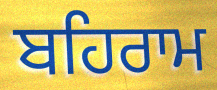
ਬਹਿਰਾਮ